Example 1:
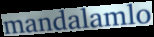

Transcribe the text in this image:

mandalamlo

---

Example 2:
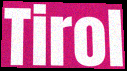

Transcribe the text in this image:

Tirol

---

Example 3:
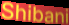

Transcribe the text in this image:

Shibani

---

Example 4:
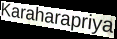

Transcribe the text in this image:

Karaharapriya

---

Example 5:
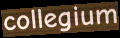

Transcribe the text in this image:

collegium